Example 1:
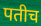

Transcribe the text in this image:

पतीच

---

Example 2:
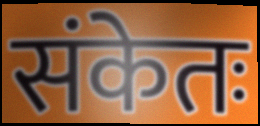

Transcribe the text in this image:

संकेतः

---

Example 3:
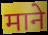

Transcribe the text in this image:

माने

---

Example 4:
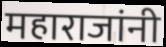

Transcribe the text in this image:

महाराजांनी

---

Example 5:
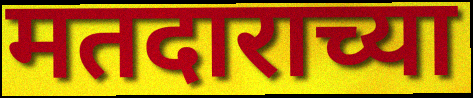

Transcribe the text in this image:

मतदाराच्या